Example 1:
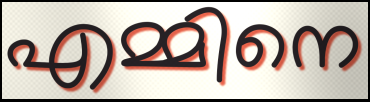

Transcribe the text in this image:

എമ്മിനെ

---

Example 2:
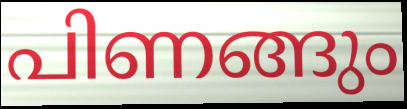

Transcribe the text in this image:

പിണങ്ങും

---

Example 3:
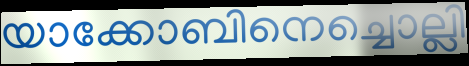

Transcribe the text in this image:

യാക്കോബിനെച്ചൊല്ലി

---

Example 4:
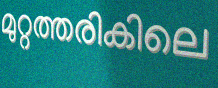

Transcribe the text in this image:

മുറ്റത്തരികിലെ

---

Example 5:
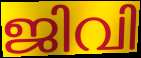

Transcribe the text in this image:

ജിവി